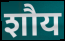
शौय